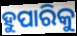
ହୁପାରିକୁ